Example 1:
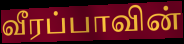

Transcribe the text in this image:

வீரப்பாவின்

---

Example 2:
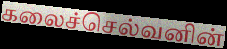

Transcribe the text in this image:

கலைச்செல்வனின்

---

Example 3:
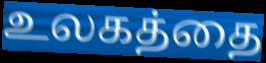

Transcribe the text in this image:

உலகத்தை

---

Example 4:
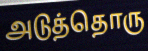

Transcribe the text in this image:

அடுத்தொரு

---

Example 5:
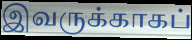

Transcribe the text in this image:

இவருக்காகப்